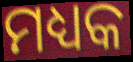
ମଧ୍ଯକ